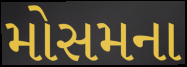
મોસમના